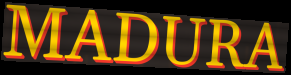
MADURA